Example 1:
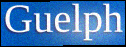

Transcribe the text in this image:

Guelph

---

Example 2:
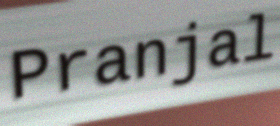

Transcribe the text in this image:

Pranjal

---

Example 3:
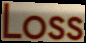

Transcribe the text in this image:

Loss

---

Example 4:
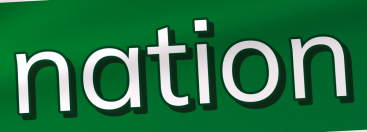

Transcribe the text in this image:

nation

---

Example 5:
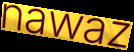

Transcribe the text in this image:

nawaz